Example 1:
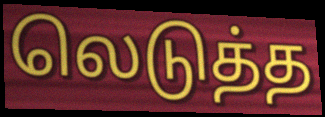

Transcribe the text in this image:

லெடுத்த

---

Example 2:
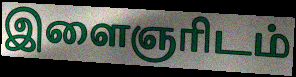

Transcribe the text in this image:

இளைஞரிடம்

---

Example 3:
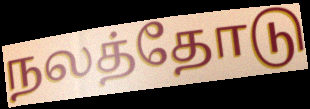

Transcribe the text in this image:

நலத்தோடு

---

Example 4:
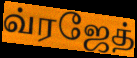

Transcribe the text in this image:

வ்ரஜேத்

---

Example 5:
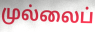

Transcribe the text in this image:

முல்லைப்